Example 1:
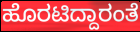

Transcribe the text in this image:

ಹೊರಟಿದ್ದಾರಂತೆ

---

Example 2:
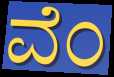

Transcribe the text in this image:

ವೆಂ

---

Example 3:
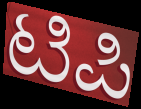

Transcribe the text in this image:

ಟಿಪಿ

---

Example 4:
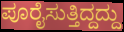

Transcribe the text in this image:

ಪೂರೈಸುತ್ತಿದ್ದದ್ದು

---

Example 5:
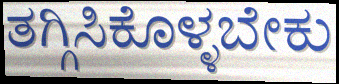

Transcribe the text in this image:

ತಗ್ಗಿಸಿಕೊಳ್ಳಬೇಕು